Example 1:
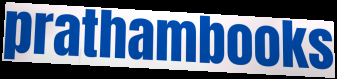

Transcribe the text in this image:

prathambooks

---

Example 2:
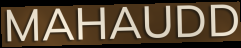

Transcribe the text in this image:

MAHAUDD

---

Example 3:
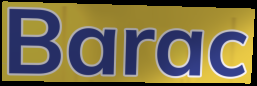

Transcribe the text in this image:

Barac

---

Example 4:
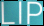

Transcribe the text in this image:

LIP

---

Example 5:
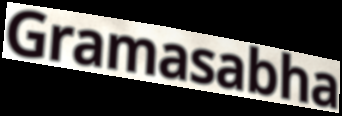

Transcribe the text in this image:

Gramasabha